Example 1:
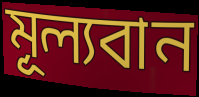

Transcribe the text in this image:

মূল্যবান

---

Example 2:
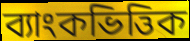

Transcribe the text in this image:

ব্যাংকভিত্তিক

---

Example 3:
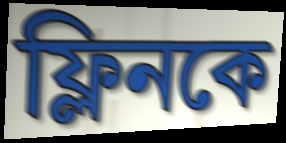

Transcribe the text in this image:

ফ্লিনকে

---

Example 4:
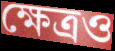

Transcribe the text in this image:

ক্ষেত্রও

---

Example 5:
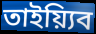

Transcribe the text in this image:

তাইয়্যিব